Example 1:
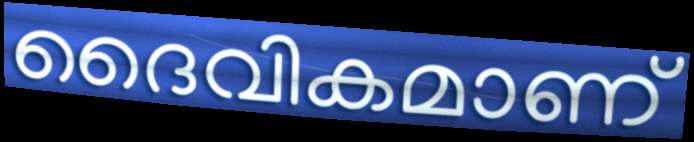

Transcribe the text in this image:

ദൈവികമാണ്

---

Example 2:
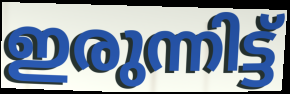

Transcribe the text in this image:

ഇരുന്നിട്ട്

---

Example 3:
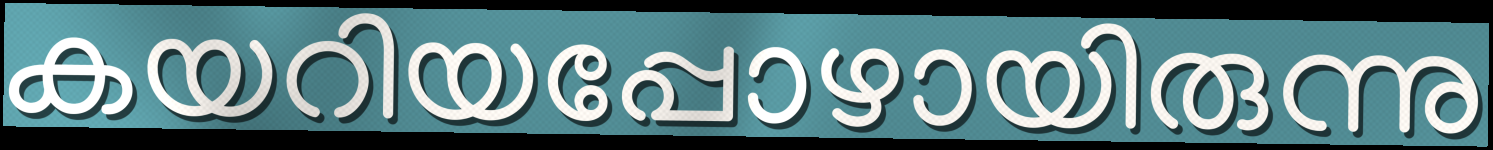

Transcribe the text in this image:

കയറിയപ്പോഴായിരുന്നു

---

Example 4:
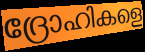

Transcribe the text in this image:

ദ്രോഹികളെ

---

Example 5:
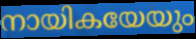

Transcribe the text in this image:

നായികയേയും